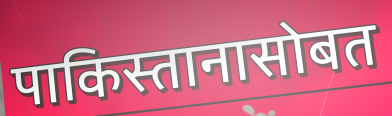
पाकिस्तानासोबत